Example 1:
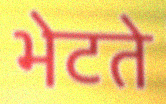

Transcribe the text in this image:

भेटते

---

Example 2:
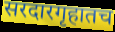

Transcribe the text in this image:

सरदारगृहातच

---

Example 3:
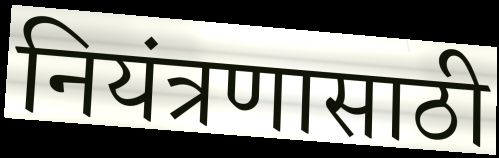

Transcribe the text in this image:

नियंत्रणासाठी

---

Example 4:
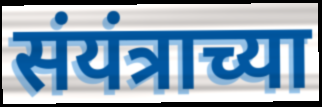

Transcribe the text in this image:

संयंत्राच्या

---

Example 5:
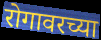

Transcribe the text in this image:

रोगावरच्या